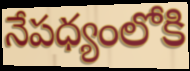
నేపధ్యంలోకి